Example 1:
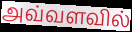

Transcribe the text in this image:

அவ்வளவில்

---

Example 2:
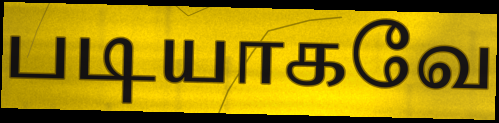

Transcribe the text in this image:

படியாகவே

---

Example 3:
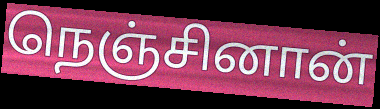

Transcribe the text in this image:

நெஞ்சினான்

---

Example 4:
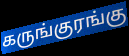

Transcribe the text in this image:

கருங்குரங்கு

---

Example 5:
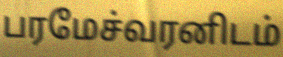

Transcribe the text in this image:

பரமேச்வரனிடம்